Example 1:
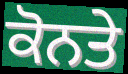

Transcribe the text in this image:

ਕੋਨਤੇ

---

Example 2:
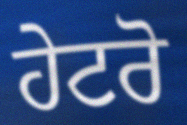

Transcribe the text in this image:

ਹੇਟਰੋ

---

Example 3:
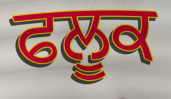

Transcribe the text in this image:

ਫਲੂਕ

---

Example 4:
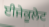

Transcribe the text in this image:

ਈਜੇਕੂਲੇਟ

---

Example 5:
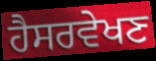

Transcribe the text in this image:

ਹੈਸਰਵੇਖਣ